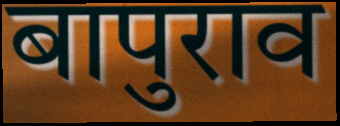
बापुराव